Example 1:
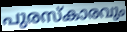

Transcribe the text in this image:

പുരസ്കാരവും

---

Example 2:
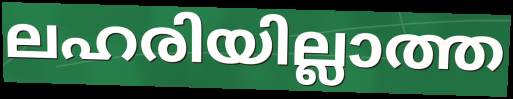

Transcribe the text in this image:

ലഹരിയില്ലാത്ത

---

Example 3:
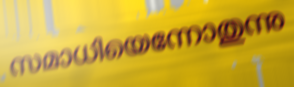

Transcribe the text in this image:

സമാധിയെന്നോതുന്നു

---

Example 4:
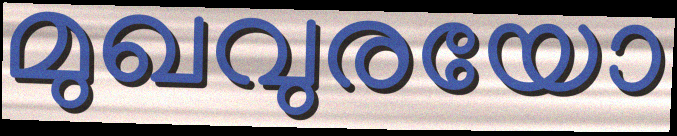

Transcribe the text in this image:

മുഖവുരയോ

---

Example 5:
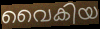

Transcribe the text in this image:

വൈകിയ